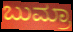
ಬುಮ್ರಾ